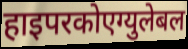
हाइपरकोएग्युलेबल